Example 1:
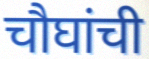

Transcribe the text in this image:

चौघांची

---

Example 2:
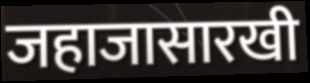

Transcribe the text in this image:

जहाजासारखी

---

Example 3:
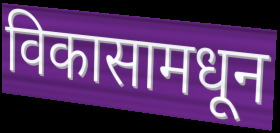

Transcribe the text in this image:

विकासामधून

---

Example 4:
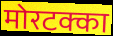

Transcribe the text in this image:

मोरटक्का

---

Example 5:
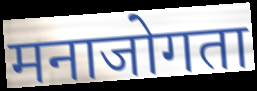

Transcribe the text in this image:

मनाजोगता